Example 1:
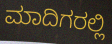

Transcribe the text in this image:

ಮಾದಿಗರಲ್ಲಿ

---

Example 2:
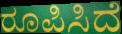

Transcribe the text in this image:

ರೂಪಿಸಿದೆ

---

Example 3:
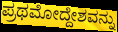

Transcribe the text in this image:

ಪ್ರಥಮೋದ್ದೇಶವನ್ನು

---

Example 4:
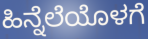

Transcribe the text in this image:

ಹಿನ್ನೆಲೆಯೊಳಗೆ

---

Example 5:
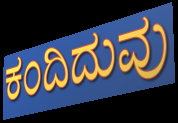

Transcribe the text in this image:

ಕಂದಿದುವು